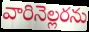
వారినెల్లరను